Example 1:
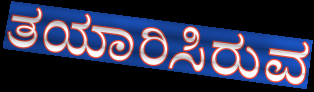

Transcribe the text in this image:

ತಯಾರಿಸಿರುವ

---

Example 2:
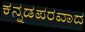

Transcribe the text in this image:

ಕನ್ನಡಪರವಾದ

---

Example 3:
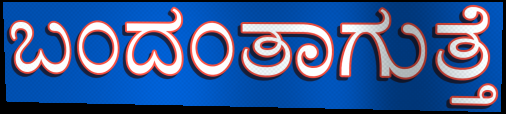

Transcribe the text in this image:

ಬಂದಂತಾಗುತ್ತೆ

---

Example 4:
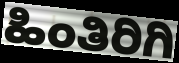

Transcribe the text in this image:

ಹಿಂತಿರಿಗಿ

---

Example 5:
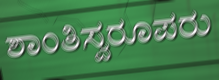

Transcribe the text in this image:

ಶಾಂತಿಸ್ವರೂಪರು